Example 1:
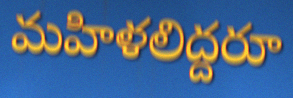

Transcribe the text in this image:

మహిళలిద్దరూ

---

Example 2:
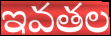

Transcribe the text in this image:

ఇవతల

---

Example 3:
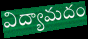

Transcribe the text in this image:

విద్యామదం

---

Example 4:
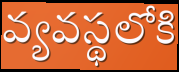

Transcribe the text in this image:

వ్యవస్థలోకి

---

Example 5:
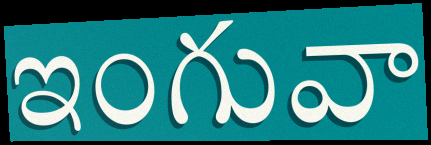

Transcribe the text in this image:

ఇంగువా